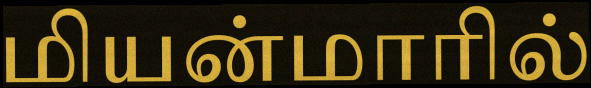
மியன்மாரில்